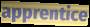
apprentice